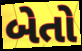
બેતો